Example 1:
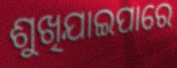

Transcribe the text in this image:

ଶୁଖିଯାଇପାରେ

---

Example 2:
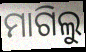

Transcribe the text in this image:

ମାଗିଲୁ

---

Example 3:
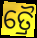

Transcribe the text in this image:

ତ୍ରୈ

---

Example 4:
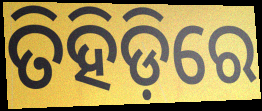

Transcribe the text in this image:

ତିହିଡ଼ିରେ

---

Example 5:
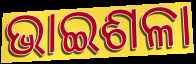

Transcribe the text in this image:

ଭାଇଶଳା